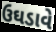
ઉઘડાવે